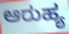
ಆರುಹ್ಯ